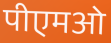
पीएमओ